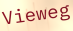
Vieweg